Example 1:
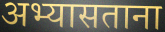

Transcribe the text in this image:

अभ्यासताना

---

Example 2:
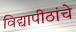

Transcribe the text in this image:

विद्यापीठांचे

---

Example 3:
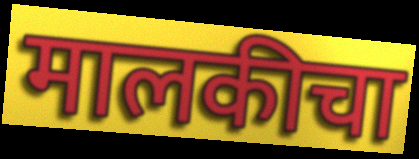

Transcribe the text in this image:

मालकीचा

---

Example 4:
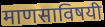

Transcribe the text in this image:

माणसाविषयी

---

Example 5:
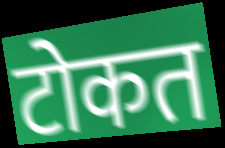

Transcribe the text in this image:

टोकत